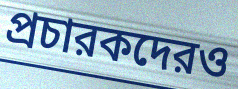
প্রচারকদেরও